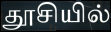
தூசியில்